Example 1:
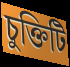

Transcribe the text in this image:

চুক্তিটি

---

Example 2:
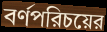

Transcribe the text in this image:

বর্ণপরিচয়ের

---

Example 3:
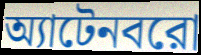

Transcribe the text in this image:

অ্যাটেনবরো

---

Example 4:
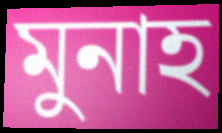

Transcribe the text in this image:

মুনাহ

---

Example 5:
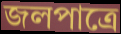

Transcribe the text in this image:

জলপাত্রে